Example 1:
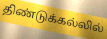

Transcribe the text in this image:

திண்டுக்கல்லில்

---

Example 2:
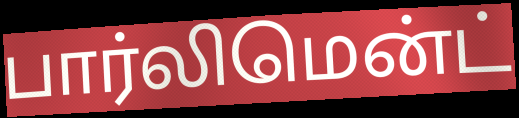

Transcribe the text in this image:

பார்லிமென்ட்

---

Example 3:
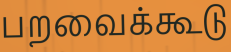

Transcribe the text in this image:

பறவைக்கூடு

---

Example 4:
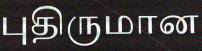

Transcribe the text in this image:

புதிருமான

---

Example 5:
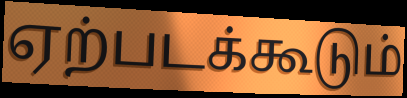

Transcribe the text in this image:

ஏற்படக்கூடும்